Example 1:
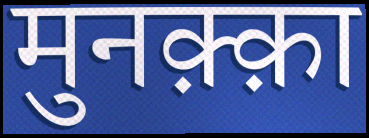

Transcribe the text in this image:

मुनक़्क़ा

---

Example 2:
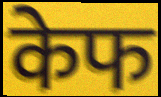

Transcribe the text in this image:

केफ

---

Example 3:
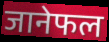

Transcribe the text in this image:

जानेफल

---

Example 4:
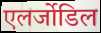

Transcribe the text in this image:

एलर्जोडिल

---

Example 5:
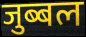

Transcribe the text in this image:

जुब्बल